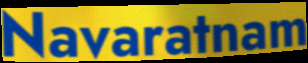
Navaratnam